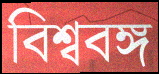
বিশ্ববঙ্গ